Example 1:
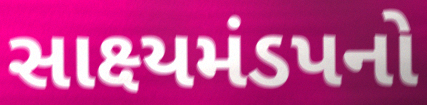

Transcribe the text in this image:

સાક્ષ્યમંડપનો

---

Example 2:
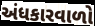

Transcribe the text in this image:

અંધકારવાળો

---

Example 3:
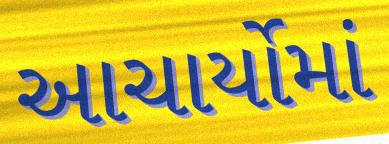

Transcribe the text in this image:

આચાર્યોમાં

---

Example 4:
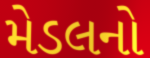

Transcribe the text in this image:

મેડલનો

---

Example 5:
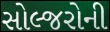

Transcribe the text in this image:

સોલ્જરોની